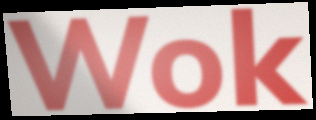
Wok